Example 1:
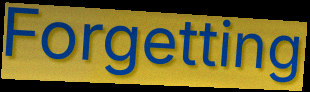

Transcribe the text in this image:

Forgetting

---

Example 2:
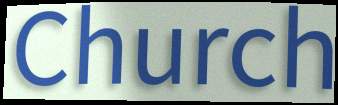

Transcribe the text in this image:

Church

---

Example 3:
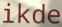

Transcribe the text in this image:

ikde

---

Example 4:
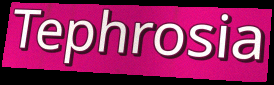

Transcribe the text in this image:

Tephrosia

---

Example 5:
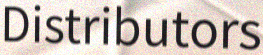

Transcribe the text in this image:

Distributors